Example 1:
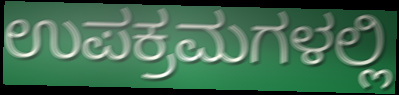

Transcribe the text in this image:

ಉಪಕ್ರಮಗಳಲ್ಲಿ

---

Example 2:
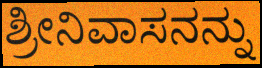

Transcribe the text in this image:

ಶ್ರೀನಿವಾಸನನ್ನು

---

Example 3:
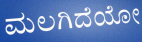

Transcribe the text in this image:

ಮಲಗಿದೆಯೋ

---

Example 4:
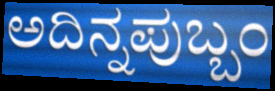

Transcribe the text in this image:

ಅದಿನ್ನಪುಬ್ಬಂ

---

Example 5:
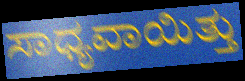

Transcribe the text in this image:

ಸಾಧ್ಯವಾಯಿತ್ತು